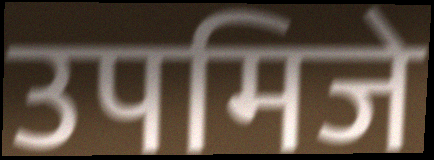
उपमिजे